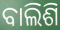
ବାଲିଶି